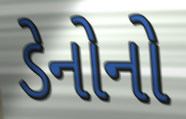
ડેનોનો